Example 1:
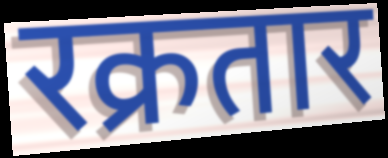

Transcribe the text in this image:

रक्रतार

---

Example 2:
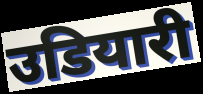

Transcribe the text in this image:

उडियारी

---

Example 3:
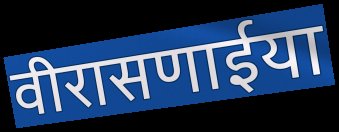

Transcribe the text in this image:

वीरासणाईया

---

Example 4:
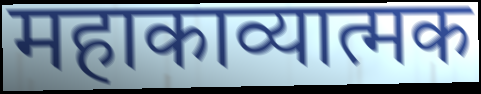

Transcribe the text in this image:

महाकाव्यात्मक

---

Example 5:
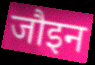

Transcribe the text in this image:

जौइन